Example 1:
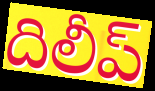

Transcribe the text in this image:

దిలీప్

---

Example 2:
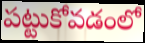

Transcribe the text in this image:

పట్టుకోవడంలో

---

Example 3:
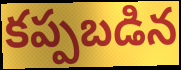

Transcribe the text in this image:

కప్పబడిన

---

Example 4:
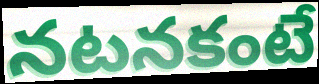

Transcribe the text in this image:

నటనకంటే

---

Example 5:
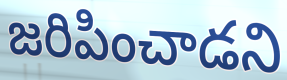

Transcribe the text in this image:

జరిపించాడని